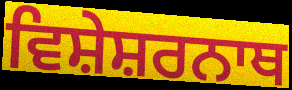
ਵਿਸ਼ੇਸ਼ਰਨਾਥ